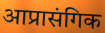
आप्रासंगिक